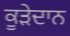
ਕੂੜੇਦਾਨ